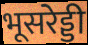
भूसरेड्डी